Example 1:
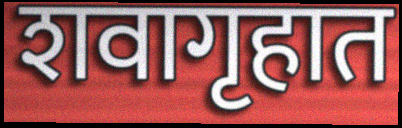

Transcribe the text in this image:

शवागृहात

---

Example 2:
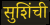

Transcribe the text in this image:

सुशिंची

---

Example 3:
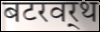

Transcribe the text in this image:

बटरवर्थ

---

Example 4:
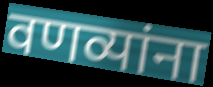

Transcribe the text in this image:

वणव्यांना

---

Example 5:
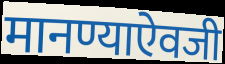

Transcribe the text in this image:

मानण्याऐवजी